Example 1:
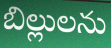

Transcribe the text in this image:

బిల్లులను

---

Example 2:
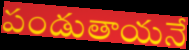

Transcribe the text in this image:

పండుతాయనే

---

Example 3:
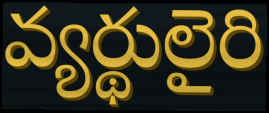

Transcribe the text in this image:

వ్యర్థులైరి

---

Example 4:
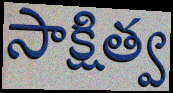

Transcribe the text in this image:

సాక్షిత్వ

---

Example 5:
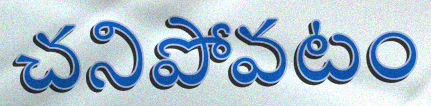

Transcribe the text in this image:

చనిపోవటం